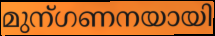
മുന്ഗണനയായി